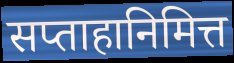
सप्ताहानिमित्त